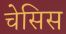
चेसिस